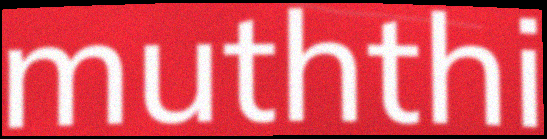
muththi